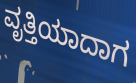
ವೃತ್ತಿಯಾದಾಗ